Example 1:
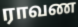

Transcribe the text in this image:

ராவண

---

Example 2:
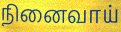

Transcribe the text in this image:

நினைவாய்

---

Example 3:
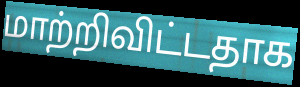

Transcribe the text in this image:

மாற்றிவிட்டதாக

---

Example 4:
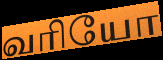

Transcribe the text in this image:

வரியோ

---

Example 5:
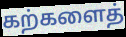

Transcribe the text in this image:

கற்களைத்